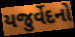
યજુર્વેદનો